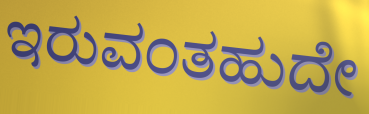
ಇರುವಂತಹುದೇ